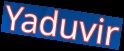
Yaduvir